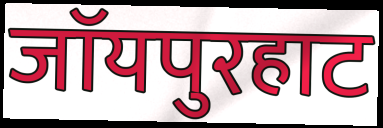
जॉयपुरहाट